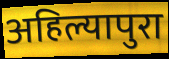
अहिल्यापुरा